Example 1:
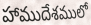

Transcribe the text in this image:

హాముదేశములో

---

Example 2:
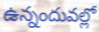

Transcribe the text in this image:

ఉన్నందువల్లో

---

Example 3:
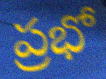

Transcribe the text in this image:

ప్రభో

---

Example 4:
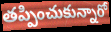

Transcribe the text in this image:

తప్పించుకున్నారో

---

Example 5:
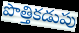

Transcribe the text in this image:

పొత్తికడుపు